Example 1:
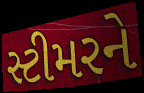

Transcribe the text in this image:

સ્ટીમરને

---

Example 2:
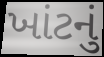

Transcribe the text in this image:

ખાંટનું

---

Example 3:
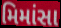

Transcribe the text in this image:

મિમાંસા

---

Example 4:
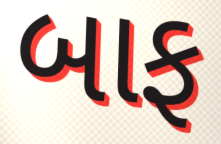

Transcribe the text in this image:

બાફ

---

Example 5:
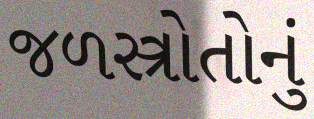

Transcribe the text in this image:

જળસ્ત્રોતોનું